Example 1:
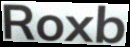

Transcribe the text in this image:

Roxb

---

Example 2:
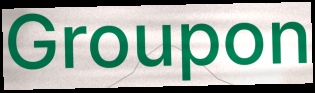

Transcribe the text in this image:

Groupon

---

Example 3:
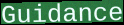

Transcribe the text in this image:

Guidance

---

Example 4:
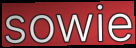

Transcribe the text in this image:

sowie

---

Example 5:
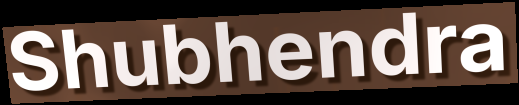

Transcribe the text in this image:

Shubhendra